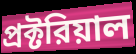
প্রক্টরিয়াল